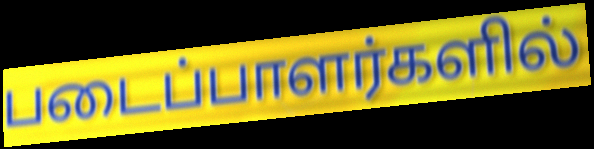
படைப்பாளர்களில்